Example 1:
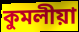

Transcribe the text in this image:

কুমলীয়া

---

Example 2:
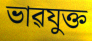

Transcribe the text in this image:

ভাৱযুক্ত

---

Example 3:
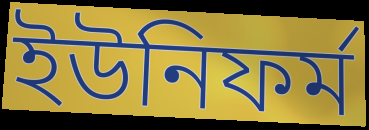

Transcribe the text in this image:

ইউনিফৰ্ম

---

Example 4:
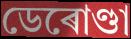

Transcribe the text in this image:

ডেৰোণ্ডা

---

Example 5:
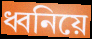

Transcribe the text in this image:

ধ্বনিয়ে